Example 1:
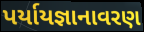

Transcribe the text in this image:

પર્યાયજ્ઞાનાવરણ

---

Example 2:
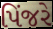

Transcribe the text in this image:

પિંજરે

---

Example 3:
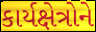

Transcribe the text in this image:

કાર્યક્ષેત્રોને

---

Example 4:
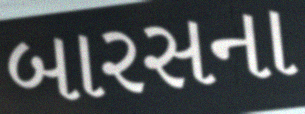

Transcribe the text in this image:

બારસના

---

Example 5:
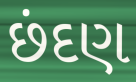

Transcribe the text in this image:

છંદણ